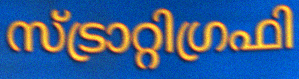
സ്ട്രാറ്റിഗ്രഫി